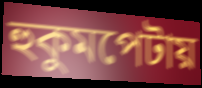
হুকুমপেটায়